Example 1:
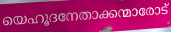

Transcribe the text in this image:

യെഹൂദനേതാക്കന്മാരോട്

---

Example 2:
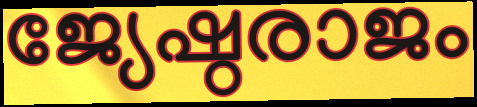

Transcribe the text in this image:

ജ്യേഷ്ഠരാജം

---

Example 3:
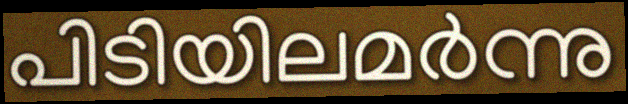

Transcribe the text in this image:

പിടിയിലമർന്നു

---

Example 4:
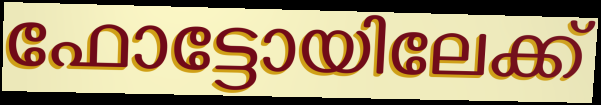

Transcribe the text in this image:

ഫോട്ടോയിലേക്ക്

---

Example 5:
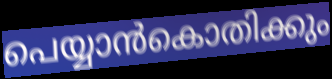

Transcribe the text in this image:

പെയ്യാൻകൊതിക്കും